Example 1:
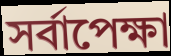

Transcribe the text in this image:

সর্বাপেক্ষা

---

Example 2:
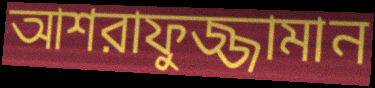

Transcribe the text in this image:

আশরাফুজ্জামান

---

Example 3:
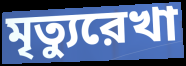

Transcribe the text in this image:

মৃত্যুরেখা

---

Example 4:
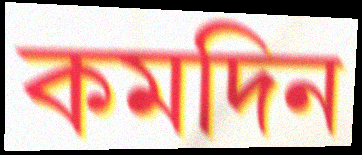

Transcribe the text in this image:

কমদিন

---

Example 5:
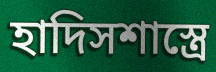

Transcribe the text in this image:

হাদিসশাস্ত্রে